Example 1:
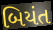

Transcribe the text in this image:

બિયંત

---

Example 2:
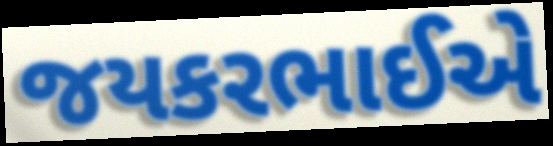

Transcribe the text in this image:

જયકરભાઈએ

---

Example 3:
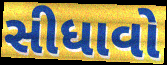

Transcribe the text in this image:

સીધાવો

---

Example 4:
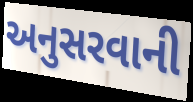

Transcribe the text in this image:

અનુસરવાની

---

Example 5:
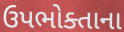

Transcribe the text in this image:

ઉપભોક્તાના